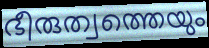
ഭീരുത്വത്തെയും